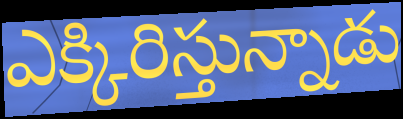
ఎక్కిరిస్తున్నాడు